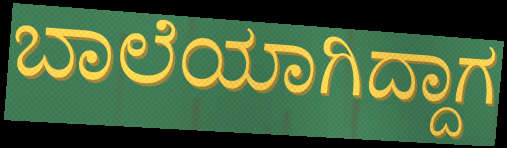
ಬಾಲೆಯಾಗಿದ್ದಾಗ